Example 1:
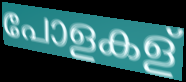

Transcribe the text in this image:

പോളകള്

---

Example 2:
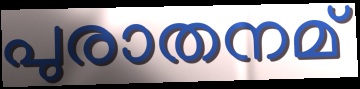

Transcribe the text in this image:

പുരാതനമ്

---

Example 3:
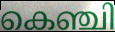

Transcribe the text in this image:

കെഞ്ചി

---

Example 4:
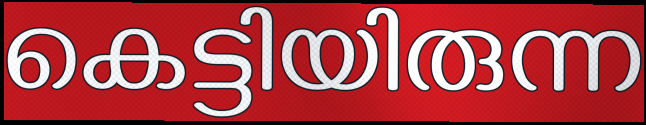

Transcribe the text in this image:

കെട്ടിയിരുന്ന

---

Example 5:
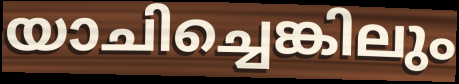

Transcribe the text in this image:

യാചിച്ചെങ്കിലും